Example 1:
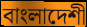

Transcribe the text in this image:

বাংলাদেশী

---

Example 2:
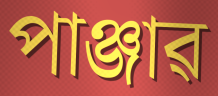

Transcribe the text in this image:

পাঞ্জাৱ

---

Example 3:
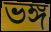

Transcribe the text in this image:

ভঙ্গ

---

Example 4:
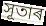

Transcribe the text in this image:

সূতাৰ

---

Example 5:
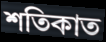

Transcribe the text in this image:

শতিকাত